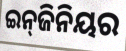
ଇନ୍‌ଜିନିୟର